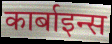
कार्बाइन्स